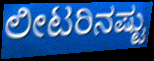
ಲೀಟರಿನಷ್ಟು